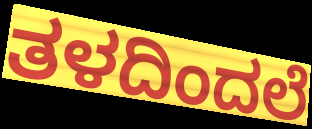
ತಳದಿಂದಲೆ